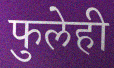
फुलेही